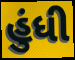
હુંધી